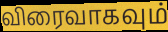
விரைவாகவும்